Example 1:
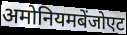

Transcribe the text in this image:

अमोनियमबेंजोएट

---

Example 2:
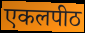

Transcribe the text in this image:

एकलपीठ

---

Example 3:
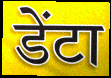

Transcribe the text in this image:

डेंटा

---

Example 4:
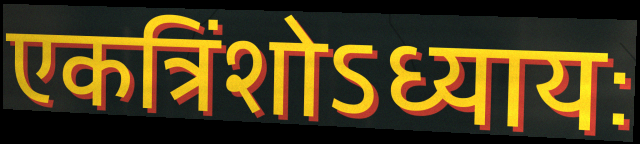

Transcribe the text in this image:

एकत्रिंशोऽध्यायः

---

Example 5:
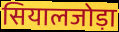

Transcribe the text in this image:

सियालजोड़ा